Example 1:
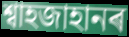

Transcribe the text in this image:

শ্বাহজাহানৰ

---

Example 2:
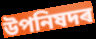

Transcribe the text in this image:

উপনিষদৰ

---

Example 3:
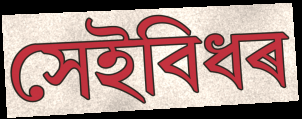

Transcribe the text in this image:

সেইবিধৰ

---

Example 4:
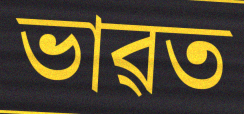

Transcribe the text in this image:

ভাৱত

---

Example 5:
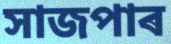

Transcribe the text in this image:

সাজপাৰ